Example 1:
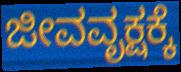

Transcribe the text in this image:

ಜೀವವೃಕ್ಷಕ್ಕೆ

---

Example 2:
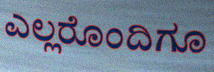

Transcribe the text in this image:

ಎಲ್ಲರೊಂದಿಗೂ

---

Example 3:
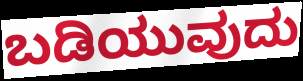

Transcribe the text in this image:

ಬಡಿಯುವುದು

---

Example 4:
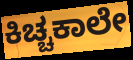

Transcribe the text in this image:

ಕಿಚ್ಚಕಾಲೇ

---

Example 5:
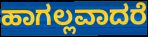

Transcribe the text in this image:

ಹಾಗಲ್ಲವಾದರೆ